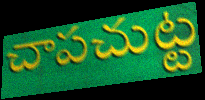
చాపచుట్ట